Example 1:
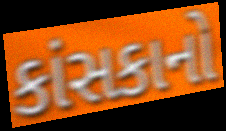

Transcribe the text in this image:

કાંસકાનો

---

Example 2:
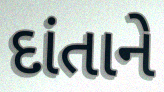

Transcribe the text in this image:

દાંતાને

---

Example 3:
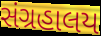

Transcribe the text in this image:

સંગ્રહાલય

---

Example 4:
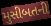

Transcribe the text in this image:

મુસીબતની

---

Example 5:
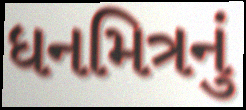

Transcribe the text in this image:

ધનમિત્રનું